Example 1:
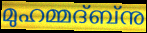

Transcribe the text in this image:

മുഹമ്മദ്ബ്നു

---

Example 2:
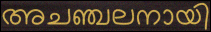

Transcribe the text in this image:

അചഞ്ചലനായി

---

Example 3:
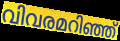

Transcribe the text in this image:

വിവരമറിഞ്ഞ്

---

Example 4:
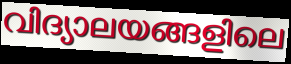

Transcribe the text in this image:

വിദ്യാലയങ്ങളിലെ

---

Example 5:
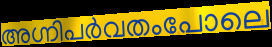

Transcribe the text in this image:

അഗ്നിപർവതംപോലെ